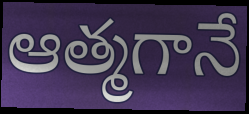
ఆత్మగానే